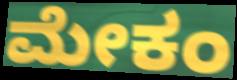
ಮೇಕಂ